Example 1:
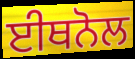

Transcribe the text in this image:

ਈਥਨੋਲ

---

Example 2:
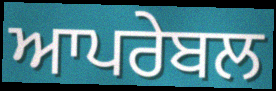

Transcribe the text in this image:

ਆਪਰੇਬਲ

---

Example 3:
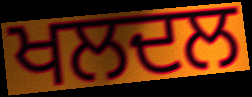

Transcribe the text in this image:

ਖਲਦਲ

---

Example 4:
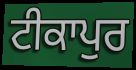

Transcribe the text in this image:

ਟੀਕਾਪੁਰ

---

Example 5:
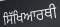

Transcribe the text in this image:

ਸਿੱਖਿਆਰਥੀ